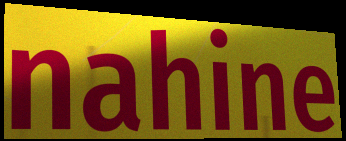
nahine